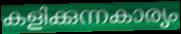
കളിക്കുന്നകാര്യം